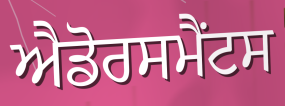
ਐਡੋਰਸਮੈਂਟਸ